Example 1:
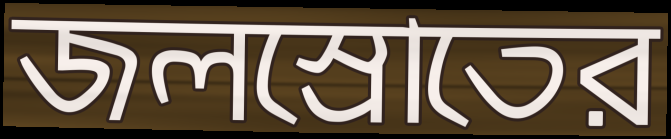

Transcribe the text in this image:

জলস্রোতের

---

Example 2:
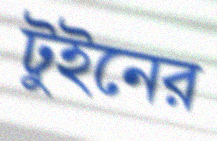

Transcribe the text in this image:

টুইনের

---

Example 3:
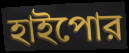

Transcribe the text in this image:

হাইপোর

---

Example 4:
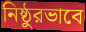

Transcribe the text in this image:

নিষ্ঠুরভাবে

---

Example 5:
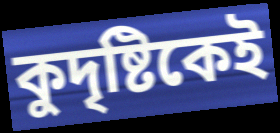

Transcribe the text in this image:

কুদৃষ্টিকেই